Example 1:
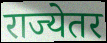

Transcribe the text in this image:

राज्येतर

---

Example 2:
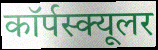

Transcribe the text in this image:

कॉर्पस्क्यूलर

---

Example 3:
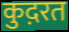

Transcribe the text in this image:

कुद़रत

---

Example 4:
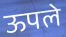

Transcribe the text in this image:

ऊपले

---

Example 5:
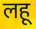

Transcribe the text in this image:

लहू